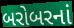
બરોબરનાં